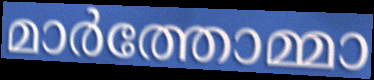
മാർത്തോമ്മാ